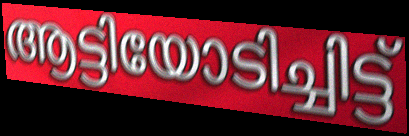
ആട്ടിയോടിച്ചിട്ട്